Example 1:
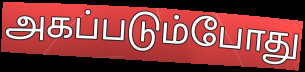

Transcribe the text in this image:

அகப்படும்போது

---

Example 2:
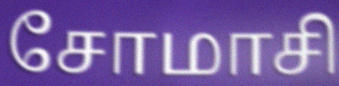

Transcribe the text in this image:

சோமாசி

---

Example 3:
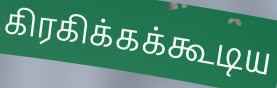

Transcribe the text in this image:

கிரகிக்கக்கூடிய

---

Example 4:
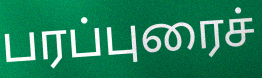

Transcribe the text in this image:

பரப்புரைச்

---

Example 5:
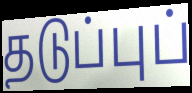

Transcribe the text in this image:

தடுப்புப்